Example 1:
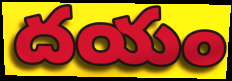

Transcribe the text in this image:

దయం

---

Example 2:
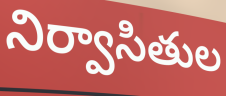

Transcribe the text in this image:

నిర్వాసితుల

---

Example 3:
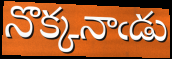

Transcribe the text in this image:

నొక్కనాఁడు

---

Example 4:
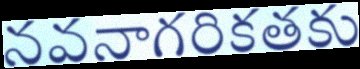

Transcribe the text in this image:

నవనాగరికతకు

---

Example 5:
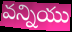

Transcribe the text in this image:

వన్నియు